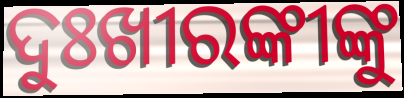
ଦୁଃଖୀରଙ୍କୀଙ୍କୁ